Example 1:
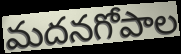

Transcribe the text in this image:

మదనగోపాల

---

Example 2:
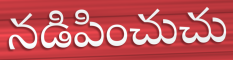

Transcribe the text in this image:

నడిపించుచు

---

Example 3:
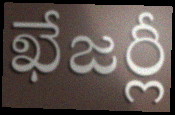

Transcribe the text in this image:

ఖేజర్లీ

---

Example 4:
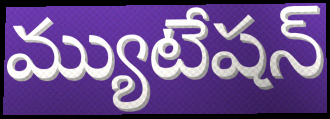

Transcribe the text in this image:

మ్యుటేషన్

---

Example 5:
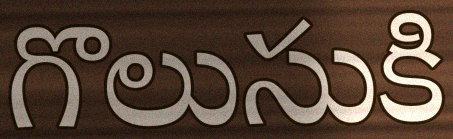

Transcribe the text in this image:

గొలుసుకి